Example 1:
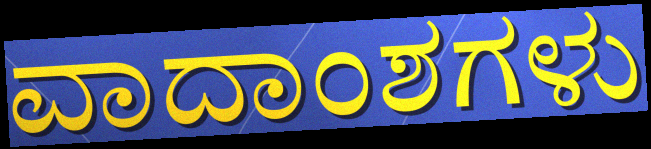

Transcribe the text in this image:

ವಾದಾಂಶಗಳು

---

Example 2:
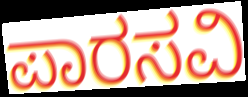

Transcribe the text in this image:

ಪಾರಸವಿ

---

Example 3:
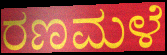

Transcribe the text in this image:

ರಣಮಳೆ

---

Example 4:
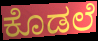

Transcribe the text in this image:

ಕೊಡಲೆ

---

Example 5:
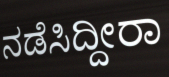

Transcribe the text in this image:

ನಡೆಸಿದ್ದೀರಾ